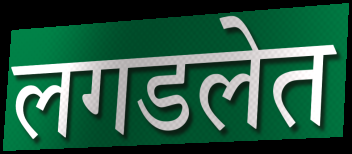
लगडलेत